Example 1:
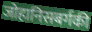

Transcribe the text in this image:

जोहानिसबर्गकी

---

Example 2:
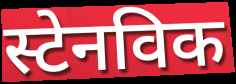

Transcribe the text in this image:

स्टेनविक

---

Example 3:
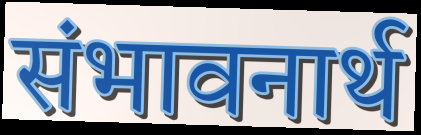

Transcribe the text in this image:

संभावनार्थ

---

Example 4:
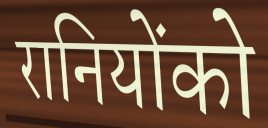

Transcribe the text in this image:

रानियोंको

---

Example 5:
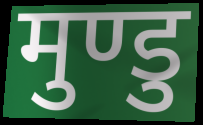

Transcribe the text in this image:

मुण्डु